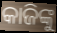
କାଜିଙ୍କୁ